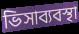
ভিসাব্যবস্থা